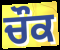
ਚੌਕ